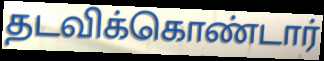
தடவிக்கொண்டார்